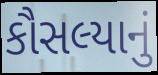
કૌસલ્યાનું